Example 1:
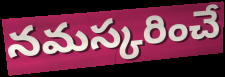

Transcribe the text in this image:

నమస్కరించే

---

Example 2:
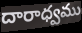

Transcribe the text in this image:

దారాధ్వము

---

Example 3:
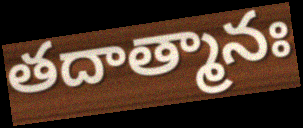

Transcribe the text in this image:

తదాత్మానః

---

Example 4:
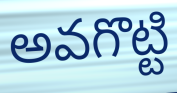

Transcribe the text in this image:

అవగొట్టి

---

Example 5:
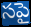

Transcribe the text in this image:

సపై